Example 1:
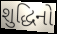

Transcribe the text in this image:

શુદ્ધિનો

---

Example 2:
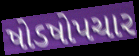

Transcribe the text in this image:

ષોડષોપચાર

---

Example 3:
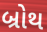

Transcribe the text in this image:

બ્રોથ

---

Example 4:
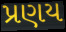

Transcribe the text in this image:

પ્રણય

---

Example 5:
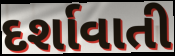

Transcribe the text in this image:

દર્શાવાતી